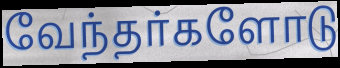
வேந்தர்களோடு